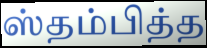
ஸ்தம்பித்த